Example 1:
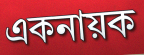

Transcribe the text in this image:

একনায়ক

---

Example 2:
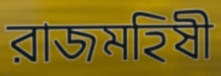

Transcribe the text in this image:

রাজমহিষী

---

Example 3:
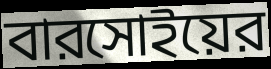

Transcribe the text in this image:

বারসোইয়ের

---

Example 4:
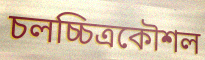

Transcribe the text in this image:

চলচ্চিত্রকৌশল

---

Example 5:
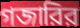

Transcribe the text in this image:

গজারির